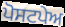
ਪੋਸਟਪੇਅ